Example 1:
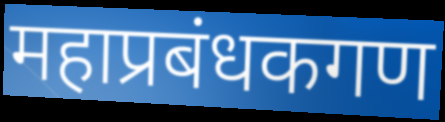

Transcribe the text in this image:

महाप्रबंधकगण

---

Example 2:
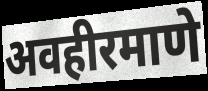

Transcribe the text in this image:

अवहीरमाणे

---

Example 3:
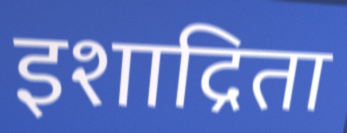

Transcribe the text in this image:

इशाद्रिता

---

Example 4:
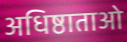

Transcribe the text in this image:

अधिष्ठाताओ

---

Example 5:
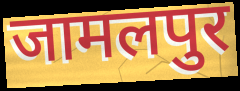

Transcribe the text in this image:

जामलपुर